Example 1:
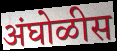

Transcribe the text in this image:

अंघोळीस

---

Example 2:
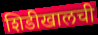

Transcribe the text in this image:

शिडीखालची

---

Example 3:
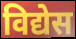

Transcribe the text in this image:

विद्येस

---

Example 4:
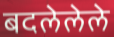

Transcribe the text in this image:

बदलेलेले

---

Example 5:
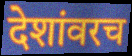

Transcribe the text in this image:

देशांवरच